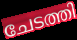
ചേടത്തി